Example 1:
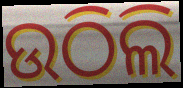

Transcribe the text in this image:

ଉଠିଲି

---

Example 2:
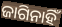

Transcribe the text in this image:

ଜାଗିନାହିଁ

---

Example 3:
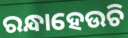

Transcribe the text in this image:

ରନ୍ଧାହେଉଚି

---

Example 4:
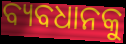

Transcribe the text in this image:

ବ୍ୟବଧାନକୁ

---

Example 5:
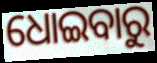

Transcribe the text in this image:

ଧୋଇବାରୁ